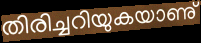
തിരിച്ചറിയുകയാണു്